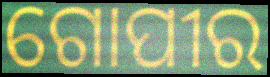
ଗୋପୀର